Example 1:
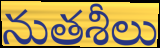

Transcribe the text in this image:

నుతశీలు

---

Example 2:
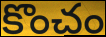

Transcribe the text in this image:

కొంచం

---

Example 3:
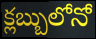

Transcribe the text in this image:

క్లబ్బులోనో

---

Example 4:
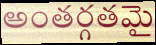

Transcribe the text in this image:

అంతర్గతమై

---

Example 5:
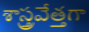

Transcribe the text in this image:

శాస్త్రవేత్తగా